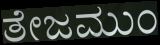
ತೇಜಮುಂ